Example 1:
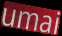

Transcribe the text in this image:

umai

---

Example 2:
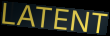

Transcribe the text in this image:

LATENT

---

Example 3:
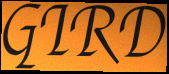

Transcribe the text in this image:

GIRD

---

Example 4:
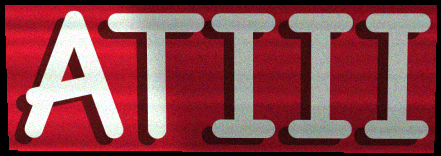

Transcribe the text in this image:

ATIII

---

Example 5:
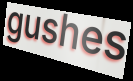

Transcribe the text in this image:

gushes